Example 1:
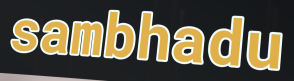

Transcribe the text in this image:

sambhadu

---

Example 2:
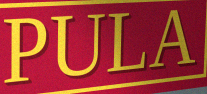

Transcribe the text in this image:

PULA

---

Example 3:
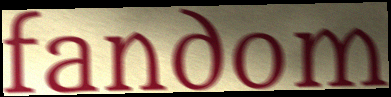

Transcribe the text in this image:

fandom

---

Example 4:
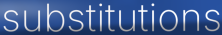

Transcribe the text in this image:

substitutions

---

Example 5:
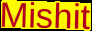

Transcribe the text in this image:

Mishit